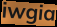
iwgia